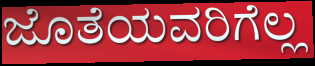
ಜೊತೆಯವರಿಗೆಲ್ಲ